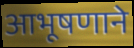
आभूषणाने